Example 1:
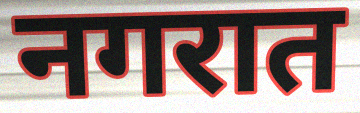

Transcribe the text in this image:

नगरात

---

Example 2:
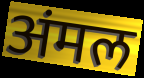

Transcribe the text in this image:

अंमल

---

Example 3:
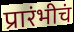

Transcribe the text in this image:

प्रारंभीचं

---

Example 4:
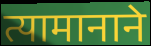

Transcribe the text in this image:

त्यामानाने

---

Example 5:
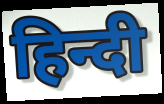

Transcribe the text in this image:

हिन्दी